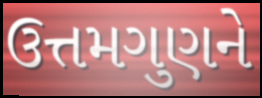
ઉત્તમગુણને